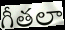
గీతలా